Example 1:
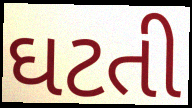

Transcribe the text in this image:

ઘટતી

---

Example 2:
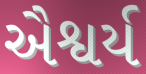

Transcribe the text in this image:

ઐશ્વર્ય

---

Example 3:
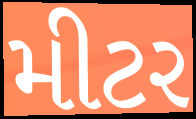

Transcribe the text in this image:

મીટર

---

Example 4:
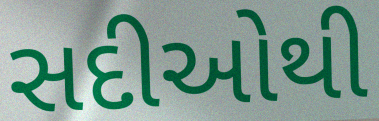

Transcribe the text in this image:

સદીઓથી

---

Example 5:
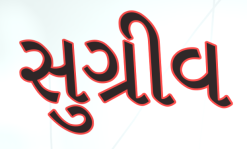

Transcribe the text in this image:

સુગ્રીવ